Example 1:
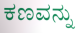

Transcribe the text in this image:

ಕಣವನ್ನು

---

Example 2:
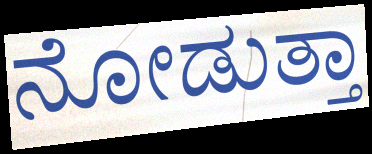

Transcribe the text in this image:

ನೋಡುತ್ತಾ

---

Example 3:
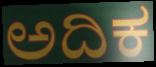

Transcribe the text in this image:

ಅದಿಕ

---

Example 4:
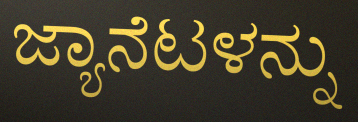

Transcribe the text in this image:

ಜ್ಯಾನೆಟಳನ್ನು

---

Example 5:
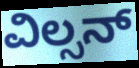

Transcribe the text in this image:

ವಿಲ್ಸನ್